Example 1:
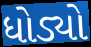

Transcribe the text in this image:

ધોડ્યો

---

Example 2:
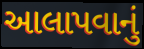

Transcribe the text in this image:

આલાપવાનું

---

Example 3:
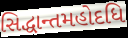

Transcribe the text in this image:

સિદ્ધાન્તમહોદધિ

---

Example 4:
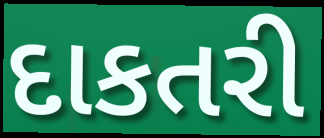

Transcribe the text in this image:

દાકતરી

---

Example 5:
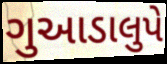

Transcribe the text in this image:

ગુઆડાલુપે